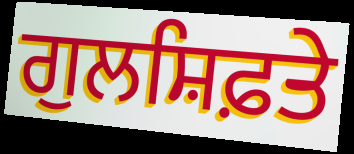
ਗੁਲਸ਼ਿਫ਼ਤੇ